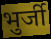
भुर्जी